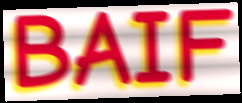
BAIF